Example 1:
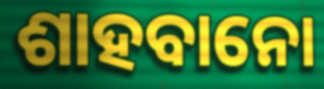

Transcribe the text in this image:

ଶାହବାନୋ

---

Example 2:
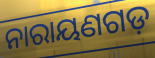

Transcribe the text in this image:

ନାରାୟଣଗଡ଼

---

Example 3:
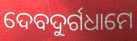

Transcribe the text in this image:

ଦେବଦୁର୍ଗଧାମେ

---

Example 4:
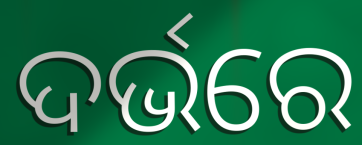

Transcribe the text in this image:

ଦର୍ଭରେ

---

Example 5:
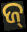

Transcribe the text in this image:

ଜ୍